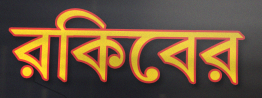
রকিবের